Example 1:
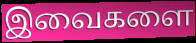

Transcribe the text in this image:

இவைகளை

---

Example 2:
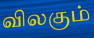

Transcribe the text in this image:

விலகும்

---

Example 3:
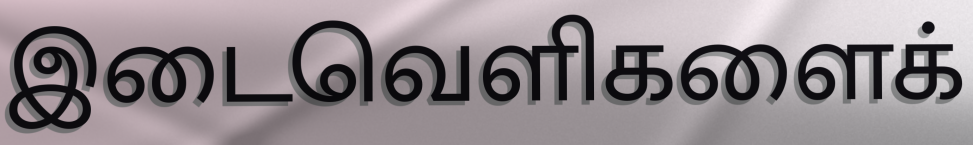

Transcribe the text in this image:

இடைவெளிகளைக்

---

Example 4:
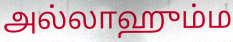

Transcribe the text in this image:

அல்லாஹும்ம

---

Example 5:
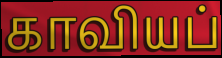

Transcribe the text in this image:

காவியப்